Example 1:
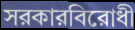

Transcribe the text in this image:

সরকারবিরোধী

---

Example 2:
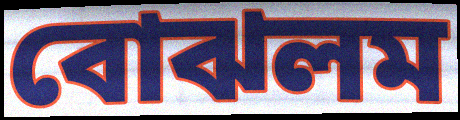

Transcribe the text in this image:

বোঝলম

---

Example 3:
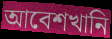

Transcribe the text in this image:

আবেশখানি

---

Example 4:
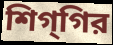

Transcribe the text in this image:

শিগ্‌গির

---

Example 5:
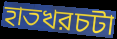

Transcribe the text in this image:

হাতখরচটা